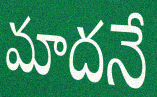
మాదనే